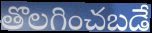
తొలగించబడే